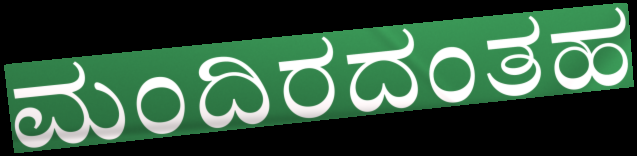
ಮಂದಿರದಂತಹ